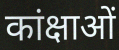
कांक्षाओं